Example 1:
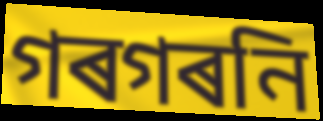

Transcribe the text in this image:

গৰগৰনি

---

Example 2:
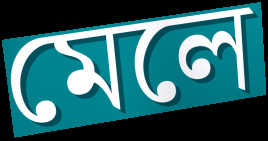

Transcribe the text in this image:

মেলে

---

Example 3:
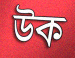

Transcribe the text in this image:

উক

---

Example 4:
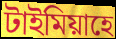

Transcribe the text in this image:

টাইমিয়াহে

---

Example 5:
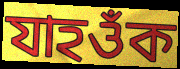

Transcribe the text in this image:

যাহওঁক